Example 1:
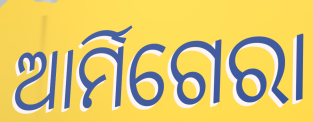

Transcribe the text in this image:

ଆର୍ମିଗେରା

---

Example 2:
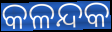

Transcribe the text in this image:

କଳନ୍ଦକ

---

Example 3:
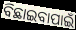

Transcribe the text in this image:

ବିଛାଇବାପାଇଁ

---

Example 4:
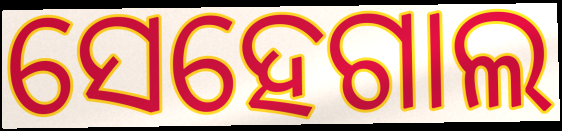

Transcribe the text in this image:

ସେହେଗାଲ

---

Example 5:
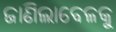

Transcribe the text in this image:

ଜାଣିଲାବେଳକୁ